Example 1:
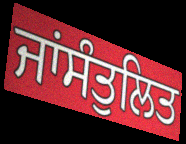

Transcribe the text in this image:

ਜਾਂਸੰਤੁਲਿਤ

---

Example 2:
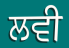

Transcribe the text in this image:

ਲਵੀ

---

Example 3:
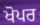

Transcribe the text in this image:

ਖੋਪਰ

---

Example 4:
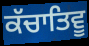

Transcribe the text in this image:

ਕੱਚਾਤਿਵੂ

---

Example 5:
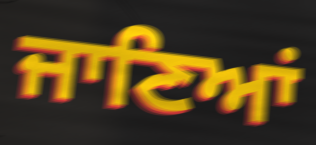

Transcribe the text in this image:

ਜਾਣਿਆਂ